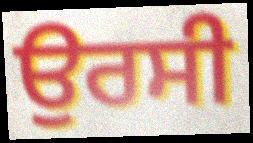
ਉਰਸੀ